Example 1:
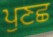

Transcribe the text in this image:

ਪੁਣਛ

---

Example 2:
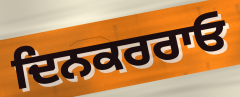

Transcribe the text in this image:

ਦਿਨਕਰਰਾਓ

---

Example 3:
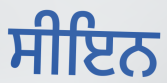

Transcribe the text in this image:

ਸੀਇਨ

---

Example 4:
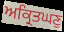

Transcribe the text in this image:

ਅਕ੍ਰਿਤਘਣੁ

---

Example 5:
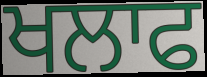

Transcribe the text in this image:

ਖਲਾਫ